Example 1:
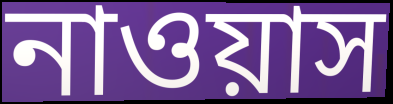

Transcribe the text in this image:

নাওয়াস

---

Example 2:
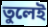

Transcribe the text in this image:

তুলেই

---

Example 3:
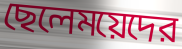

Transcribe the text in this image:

ছেলেময়েদের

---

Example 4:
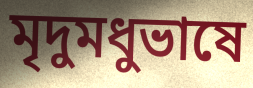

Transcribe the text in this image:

মৃদুমধুভাষে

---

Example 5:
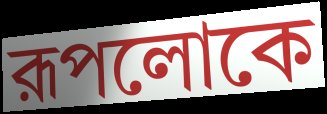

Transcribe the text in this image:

রূপলোকে